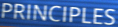
PRINCIPLES